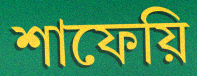
শাফেয়ি